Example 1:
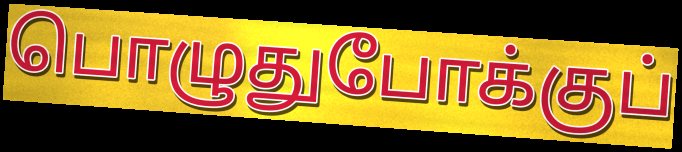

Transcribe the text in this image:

பொழுதுபோக்குப்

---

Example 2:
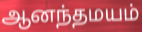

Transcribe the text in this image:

ஆனந்தமயம்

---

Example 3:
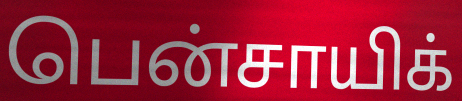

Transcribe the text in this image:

பென்சாயிக்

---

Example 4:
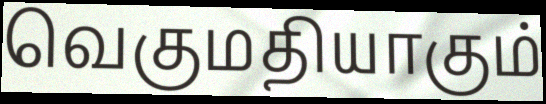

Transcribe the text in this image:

வெகுமதியாகும்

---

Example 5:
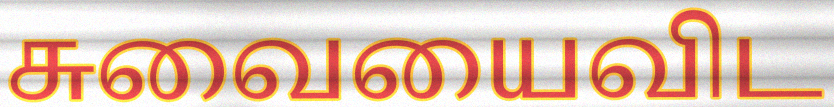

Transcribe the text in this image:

சுவையைவிட